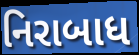
નિરાબાધ